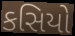
કસિયો